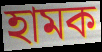
হামক